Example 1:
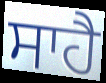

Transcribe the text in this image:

ਸਾਹੈ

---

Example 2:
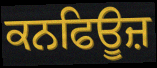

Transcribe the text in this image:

ਕਨਫਿਊਜ਼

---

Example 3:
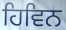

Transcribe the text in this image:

ਹਿਵਿਨ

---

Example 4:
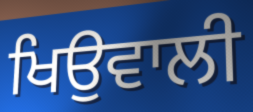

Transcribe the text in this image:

ਖਿਉਵਾਲੀ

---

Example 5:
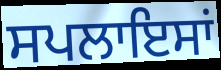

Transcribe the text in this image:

ਸਪਲਾਇਸਾਂ